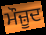
ਮੌਜ਼ੂਦ